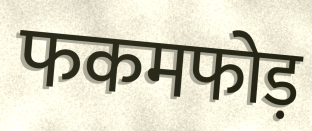
फकमफोड़